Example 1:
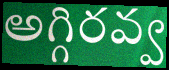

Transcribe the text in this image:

అగ్గిరవ్వ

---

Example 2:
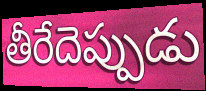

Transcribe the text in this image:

తీరేదెప్పుడు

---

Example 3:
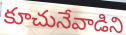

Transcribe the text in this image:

కూచునేవాడిని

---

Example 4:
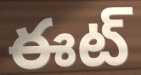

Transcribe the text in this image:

ఈట్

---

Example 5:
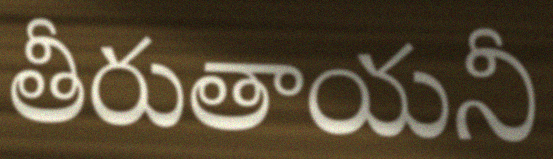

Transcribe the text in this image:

తీరుతాయనీ